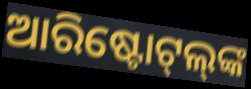
ଆରିଷ୍ଟୋଟ୍‌ଲ୍‌ଙ୍କ